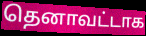
தெனாவட்டாக